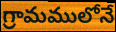
గ్రామములోనే